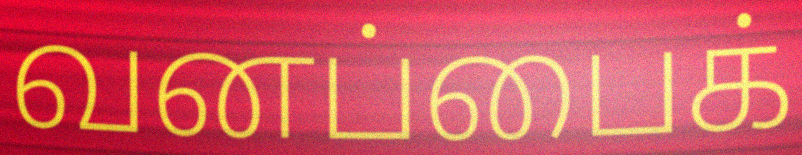
வனப்பைக்